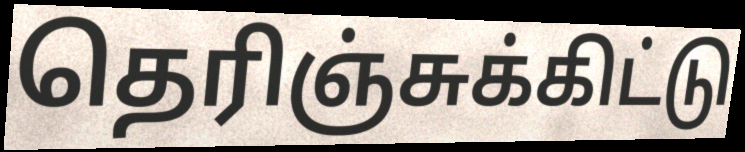
தெரிஞ்சுக்கிட்டு